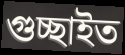
গুচ্ছাইত